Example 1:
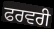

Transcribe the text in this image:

ਫਰਵਰੀ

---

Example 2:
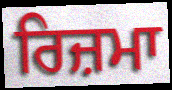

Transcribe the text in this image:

ਰਿਜ਼ਮਾ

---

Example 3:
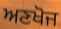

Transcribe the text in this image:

ਅਣਖੋਜ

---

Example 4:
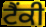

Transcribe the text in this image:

ਟੈਂਕੀ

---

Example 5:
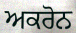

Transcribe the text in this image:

ਅਕਰੋਨ